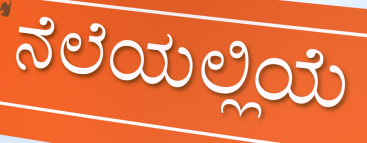
ನೆಲೆಯಲ್ಲಿಯೆ